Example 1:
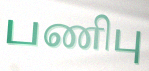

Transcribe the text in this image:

பணிபு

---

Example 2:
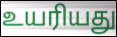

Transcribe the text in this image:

உயரியது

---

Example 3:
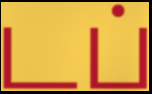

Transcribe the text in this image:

டப்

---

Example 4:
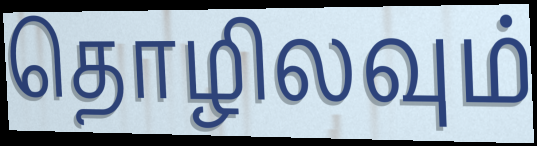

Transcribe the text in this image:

தொழிலவும்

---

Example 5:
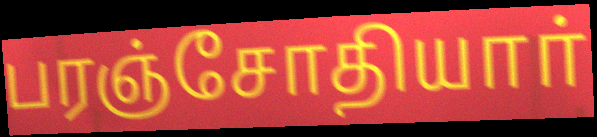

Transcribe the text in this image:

பரஞ்சோதியார்